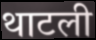
थाटली